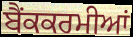
ਬੈਂਕਕਰਮੀਆਂ